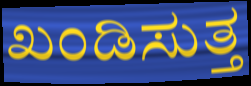
ಖಂಡಿಸುತ್ತ